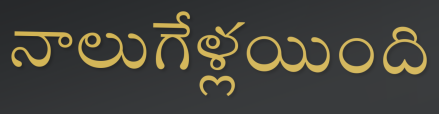
నాలుగేళ్లయింది